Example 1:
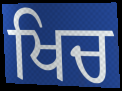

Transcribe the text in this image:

ਖਿਚ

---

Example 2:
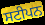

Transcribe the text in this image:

ਸਟੀਪਨ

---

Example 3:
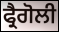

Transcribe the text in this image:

ਫ੍ਰੈਗੋਲੀ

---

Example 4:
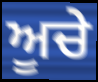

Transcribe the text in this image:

ਅੂਚੇ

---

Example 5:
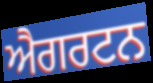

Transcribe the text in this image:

ਐਗਰਟਨ